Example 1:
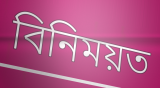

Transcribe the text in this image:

বিনিময়ত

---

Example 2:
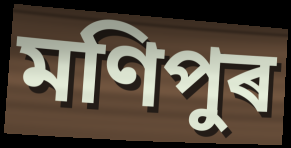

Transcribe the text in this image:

মণিপুৰ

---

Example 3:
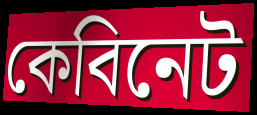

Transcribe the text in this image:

কেবিনেট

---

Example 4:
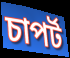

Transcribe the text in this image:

চাপৰ্ট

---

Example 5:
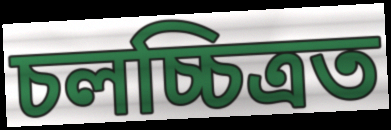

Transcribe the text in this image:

চলচ্চিত্ৰত